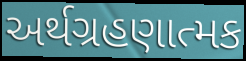
અર્થગ્રહણાત્મક